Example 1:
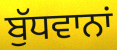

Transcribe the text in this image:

ਬੁੱਧਵਾਨਾਂ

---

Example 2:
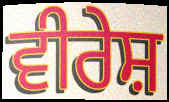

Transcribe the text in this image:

ਵੀਰੇਸ਼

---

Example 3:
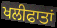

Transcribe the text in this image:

ਖਲੀਫਾਤਾਂ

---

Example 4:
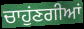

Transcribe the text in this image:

ਚਾਹੁਂਣਗੀਆਂ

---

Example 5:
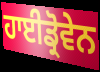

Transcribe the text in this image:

ਹਾਈਡ੍ਰੋਵੇਨ